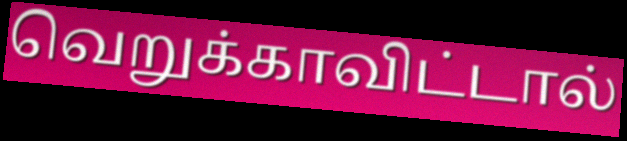
வெறுக்காவிட்டால்